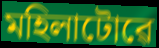
মহিলাটোৱে